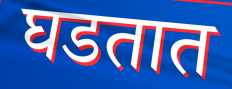
घडतात